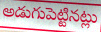
అడుగుపెట్టినట్లు